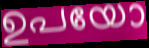
ഉപയോ